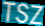
TSZ